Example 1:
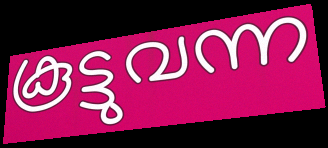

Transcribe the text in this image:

കൂട്ടുവന്ന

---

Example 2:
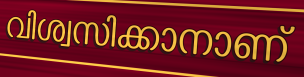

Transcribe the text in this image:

വിശ്വസിക്കാനാണ്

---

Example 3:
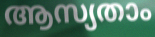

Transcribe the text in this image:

ആസ്യതാം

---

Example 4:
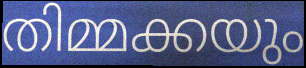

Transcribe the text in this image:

തിമ്മക്കയും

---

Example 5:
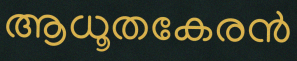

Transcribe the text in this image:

ആധൂതകേരൻ